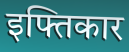
इफ्तिकार